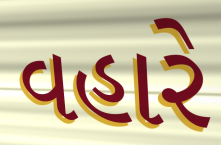
વહારે